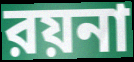
রয়না